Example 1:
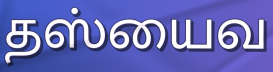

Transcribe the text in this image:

தஸ்யைவ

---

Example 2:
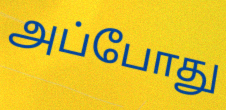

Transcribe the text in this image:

அப்போது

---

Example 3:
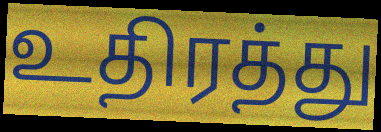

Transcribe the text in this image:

உதிரத்து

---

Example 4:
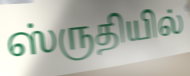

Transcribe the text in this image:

ஸ்ருதியில்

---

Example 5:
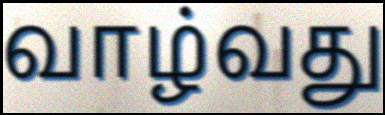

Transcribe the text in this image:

வாழ்வது